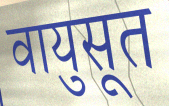
वायुसूत